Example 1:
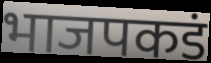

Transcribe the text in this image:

भाजपकडं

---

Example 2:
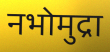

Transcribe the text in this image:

नभोमुद्रा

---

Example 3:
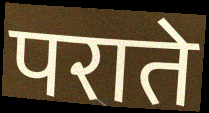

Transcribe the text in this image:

पराते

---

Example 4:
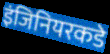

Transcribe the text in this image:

इंजिनियरकडे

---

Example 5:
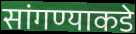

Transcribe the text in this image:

सांगण्याकडे